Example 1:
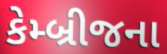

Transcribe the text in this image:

કેમ્બ્રીજના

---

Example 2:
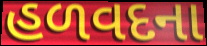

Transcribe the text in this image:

હળવદના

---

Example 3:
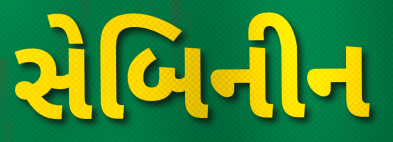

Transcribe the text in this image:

સેબિનીન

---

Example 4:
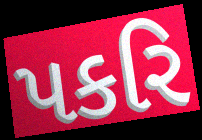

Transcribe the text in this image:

પકરિ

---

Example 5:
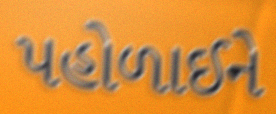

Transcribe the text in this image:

પહોળાઈને